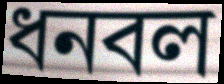
ধনবল